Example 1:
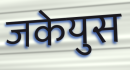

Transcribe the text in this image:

जकेयुस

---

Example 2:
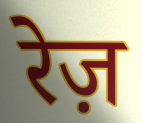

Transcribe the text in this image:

रेज़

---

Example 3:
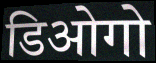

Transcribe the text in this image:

डिओगो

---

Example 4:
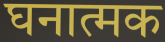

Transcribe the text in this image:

घनात्मक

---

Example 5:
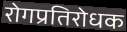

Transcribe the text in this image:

रोगप्रतिरोधक